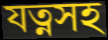
যত্নসহ